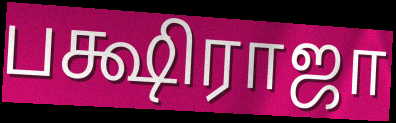
பக்ஷிராஜா